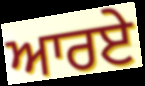
ਆਰਏ